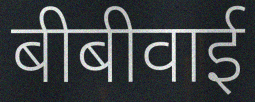
बीबीवाई